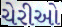
ચેરીઓ